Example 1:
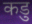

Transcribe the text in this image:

कडु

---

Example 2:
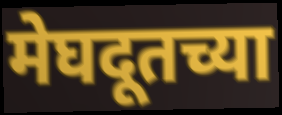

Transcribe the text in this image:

मेघदूतच्या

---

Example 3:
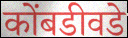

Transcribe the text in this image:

कोंबडीवडे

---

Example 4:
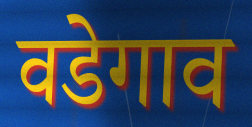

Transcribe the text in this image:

वडेगाव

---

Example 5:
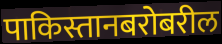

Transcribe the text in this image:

पाकिस्तानबरोबरील